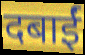
दबाईं